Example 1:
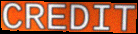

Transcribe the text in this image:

CREDIT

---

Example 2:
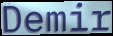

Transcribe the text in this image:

Demir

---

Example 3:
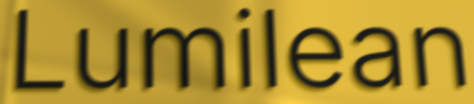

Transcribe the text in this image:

Lumilean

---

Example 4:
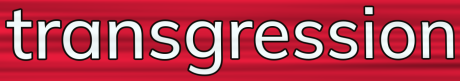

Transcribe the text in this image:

transgression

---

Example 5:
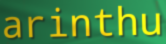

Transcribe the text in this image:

arinthu